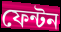
ফেন্টন